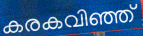
കരകവിഞ്ഞ്